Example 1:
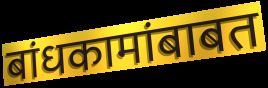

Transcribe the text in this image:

बांधकामांबाबत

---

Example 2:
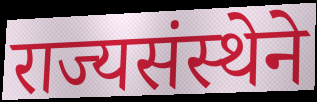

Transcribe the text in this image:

राज्यसंस्थेने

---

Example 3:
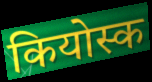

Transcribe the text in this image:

कियोस्क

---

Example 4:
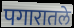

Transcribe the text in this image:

पगारातले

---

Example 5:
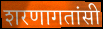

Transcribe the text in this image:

शरणागतांसी